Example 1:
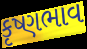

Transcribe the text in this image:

કૃષ્ણભાવ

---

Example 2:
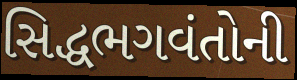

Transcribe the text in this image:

સિદ્ધભગવંતોની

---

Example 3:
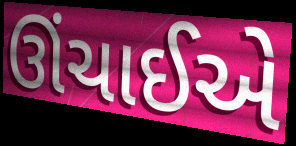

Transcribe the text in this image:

ઊંચાઈએ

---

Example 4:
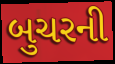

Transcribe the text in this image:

બુચરની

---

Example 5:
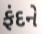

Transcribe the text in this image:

ફંદને